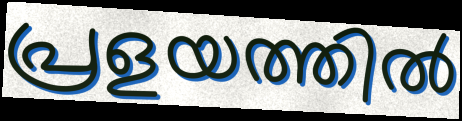
പ്രളയത്തിൽ